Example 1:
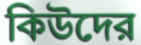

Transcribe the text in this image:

কিউদের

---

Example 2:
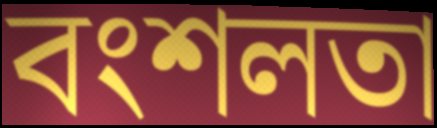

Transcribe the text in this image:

বংশলতা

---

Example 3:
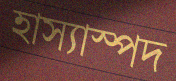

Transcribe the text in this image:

হাস্যাস্পদ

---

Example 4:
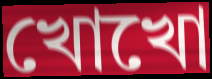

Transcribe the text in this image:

খোখো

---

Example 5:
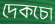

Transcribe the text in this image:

দেকচো